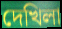
দেখিলা